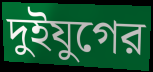
দুইযুগের